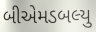
બીએમડબલ્યુ